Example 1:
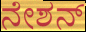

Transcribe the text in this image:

ನೇಶನ್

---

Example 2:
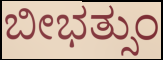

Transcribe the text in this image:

ಬೀಭತ್ಸುಂ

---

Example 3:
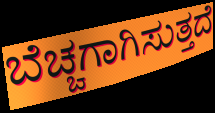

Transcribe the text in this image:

ಬೆಚ್ಚಗಾಗಿಸುತ್ತದೆ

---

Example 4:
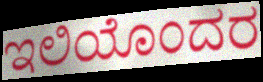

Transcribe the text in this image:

ಇಲಿಯೊಂದರ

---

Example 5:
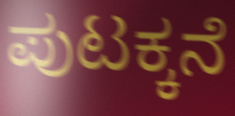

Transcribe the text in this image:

ಪುಟಕ್ಕನೆ